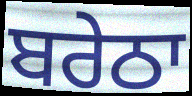
ਬਰੇਠਾ